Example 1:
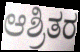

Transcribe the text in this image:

ಆಶ್ರಿತರ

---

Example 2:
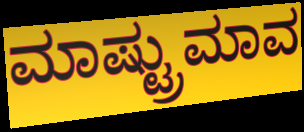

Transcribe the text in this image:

ಮಾಷ್ಟ್ರುಮಾವ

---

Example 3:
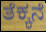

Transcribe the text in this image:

ತೆಕ್ಕನೆ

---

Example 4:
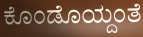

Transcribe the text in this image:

ಕೊಂಡೊಯ್ದಂತೆ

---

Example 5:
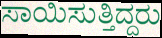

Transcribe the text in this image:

ಸಾಯಿಸುತ್ತಿದ್ದರು